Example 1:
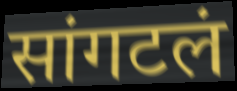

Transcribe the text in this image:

सांगटलं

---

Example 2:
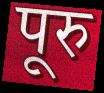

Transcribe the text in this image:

पूरु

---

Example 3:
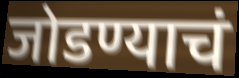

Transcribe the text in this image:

जोडण्याचं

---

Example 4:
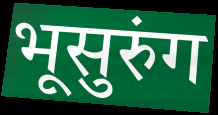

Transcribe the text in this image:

भूसुरुंग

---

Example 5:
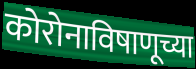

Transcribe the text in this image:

कोरोनाविषाणूच्या